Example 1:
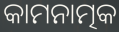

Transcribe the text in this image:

କାମନାତ୍ମକ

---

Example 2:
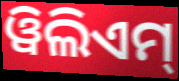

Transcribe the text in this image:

ୱିଲିଏମ୍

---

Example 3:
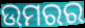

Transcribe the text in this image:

ଉମରର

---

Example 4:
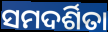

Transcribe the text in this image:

ସମଦର୍ଶିତା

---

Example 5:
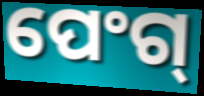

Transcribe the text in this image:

ପେଂଗ୍